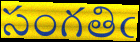
సంగతిఁ